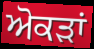
ਅੋਕੜਾਂ